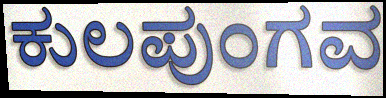
ಕುಲಪುಂಗವ